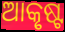
ଆକୃଷ୍ଟ